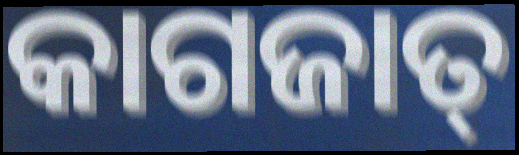
କାଗଜାତ୍